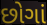
છોગાં